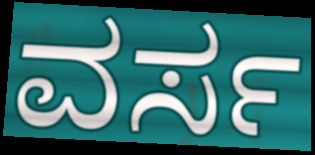
ವರ್ಸ